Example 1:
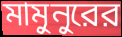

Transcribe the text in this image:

মামুনুরের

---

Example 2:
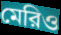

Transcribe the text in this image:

মেরিও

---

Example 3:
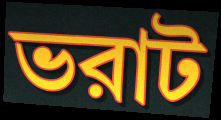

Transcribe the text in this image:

ভরাট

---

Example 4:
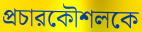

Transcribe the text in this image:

প্রচারকৌশলকে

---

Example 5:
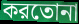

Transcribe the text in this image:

করতোনা